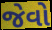
જેવો